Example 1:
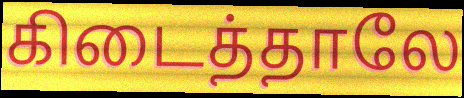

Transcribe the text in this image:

கிடைத்தாலே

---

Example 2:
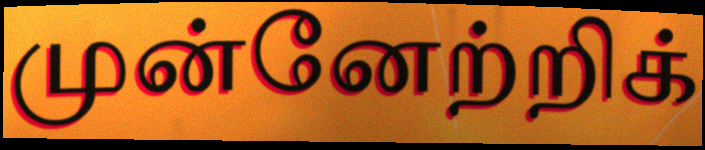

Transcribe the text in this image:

முன்னேற்றிக்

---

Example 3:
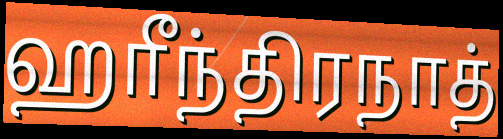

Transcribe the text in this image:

ஹரீந்திரநாத்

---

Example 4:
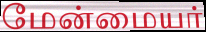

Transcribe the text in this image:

மேன்மையர்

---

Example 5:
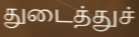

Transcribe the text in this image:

துடைத்துச்